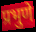
प्रभुणे